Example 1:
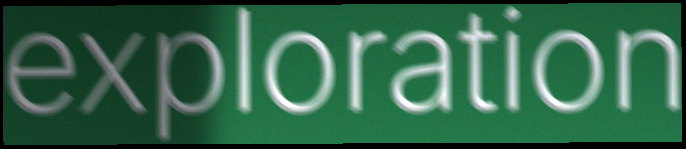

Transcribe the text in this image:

exploration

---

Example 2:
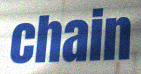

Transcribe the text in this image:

chain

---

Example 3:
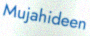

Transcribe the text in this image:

Mujahideen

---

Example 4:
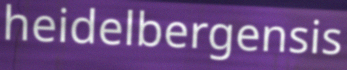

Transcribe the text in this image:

heidelbergensis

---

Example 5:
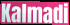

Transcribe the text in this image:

Kalmadi